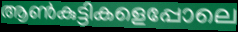
ആൺകുട്ടികളെപ്പോലെ